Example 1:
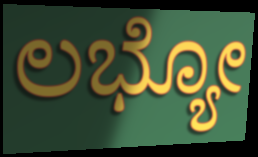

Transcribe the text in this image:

ಲಭ್ಯೋ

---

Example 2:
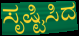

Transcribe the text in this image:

ಸೃಷ್ಟಿಸಿದ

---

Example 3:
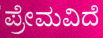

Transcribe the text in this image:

ಪ್ರೇಮವಿದೆ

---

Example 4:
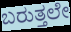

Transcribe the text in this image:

ಬರುತ್ತಲೇ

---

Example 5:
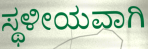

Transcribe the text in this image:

ಸ್ಥಳೀಯವಾಗಿ